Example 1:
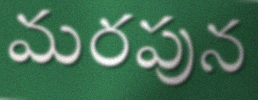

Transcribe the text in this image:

మరపున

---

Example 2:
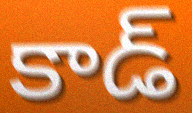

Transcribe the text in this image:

కాడ్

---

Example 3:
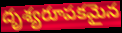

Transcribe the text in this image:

దృశ్యరూపకమైన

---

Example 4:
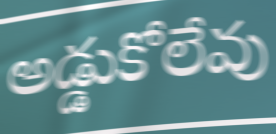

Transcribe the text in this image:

అడ్డుకోలేవు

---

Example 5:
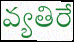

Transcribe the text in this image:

వ్యతిరే